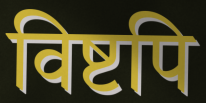
विष्टपि